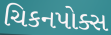
ચિકનપોક્સ